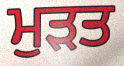
ਮੁੜਤ